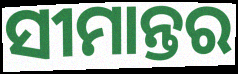
ସୀମାନ୍ତର